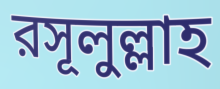
রসূলুল্লাহ